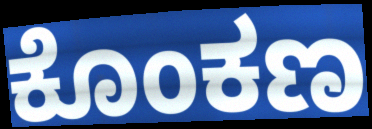
ಕೊಂಕಣ